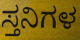
ಸ್ತನಿಗಳ